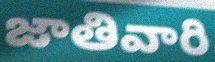
జాతివారి